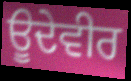
ਊਦੇਵੀਰ